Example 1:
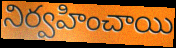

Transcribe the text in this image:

నిర్వహించాయి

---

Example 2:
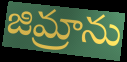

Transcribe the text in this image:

జిమ్రాను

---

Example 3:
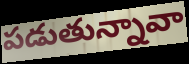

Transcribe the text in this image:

పడుతున్నావా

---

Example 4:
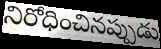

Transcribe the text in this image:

నిరోధించినప్పుడు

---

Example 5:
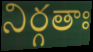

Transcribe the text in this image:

నిర్గతాః